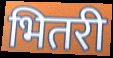
भितरी